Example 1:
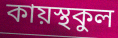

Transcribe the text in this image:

কায়স্থকুল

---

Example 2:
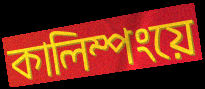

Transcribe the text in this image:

কালিম্পংয়ে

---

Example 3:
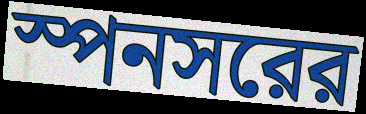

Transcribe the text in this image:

স্পনসরের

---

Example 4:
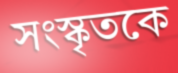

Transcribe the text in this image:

সংস্কৃতকে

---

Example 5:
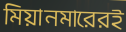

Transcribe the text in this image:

মিয়ানমারেরই